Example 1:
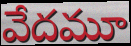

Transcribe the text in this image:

వేదమూ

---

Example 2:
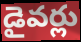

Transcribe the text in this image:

డైవర్లు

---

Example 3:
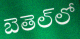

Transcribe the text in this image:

బెతెల్‌లో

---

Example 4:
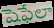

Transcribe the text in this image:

షెఫేలా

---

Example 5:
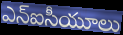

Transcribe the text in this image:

ఎన్ఐసీయూలు